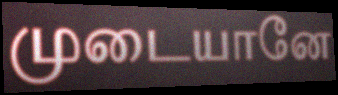
முடையானே